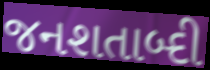
જનશતાબ્દી